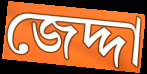
জেদ্দা